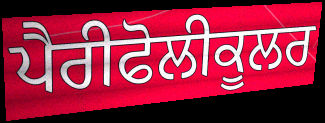
ਪੈਰੀਫੋਲੀਕੂਲਰ